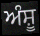
ਅੰਸ਼ੂ